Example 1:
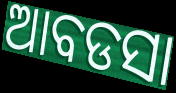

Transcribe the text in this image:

ଆବଡସା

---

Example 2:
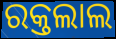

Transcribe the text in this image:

ରକ୍ତଲାଲ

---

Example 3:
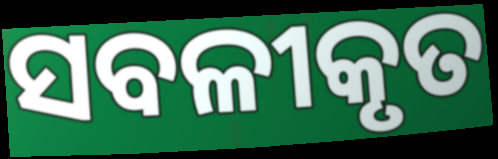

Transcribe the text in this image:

ସବଳୀକୃତ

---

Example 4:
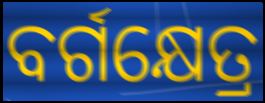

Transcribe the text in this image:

ବର୍ଗକ୍ଷେତ୍ର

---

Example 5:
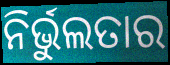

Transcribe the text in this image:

ନିର୍ଭୁଲତାର